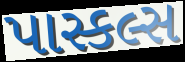
પાસ્કલ્સ